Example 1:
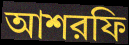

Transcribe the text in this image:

আশরফি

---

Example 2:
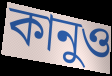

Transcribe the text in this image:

কানুও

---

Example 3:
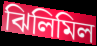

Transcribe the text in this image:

ঝিলিমিল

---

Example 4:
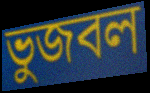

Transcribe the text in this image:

ভুজবল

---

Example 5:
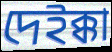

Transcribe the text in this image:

দেইক্কা